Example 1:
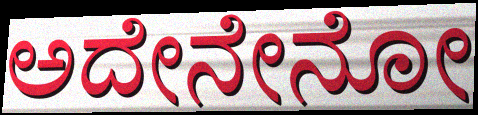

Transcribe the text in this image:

ಅದೇನೇನೋ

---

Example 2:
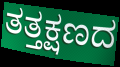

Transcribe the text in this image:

ತತ್ತಕ್ಷಣದ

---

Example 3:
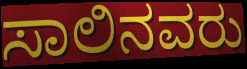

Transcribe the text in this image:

ಸಾಲಿನವರು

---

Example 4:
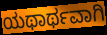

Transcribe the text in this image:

ಯಥಾರ್ಥವಾಗಿ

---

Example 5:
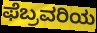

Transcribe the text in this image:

ಫೆಬ್ರವರಿಯ